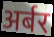
अर्बर